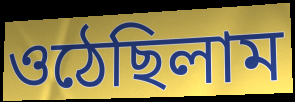
ওঠেছিলাম